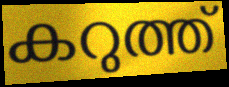
കറുത്ത്